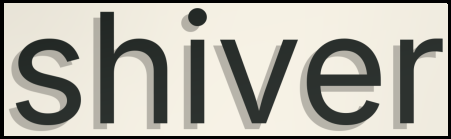
shiver